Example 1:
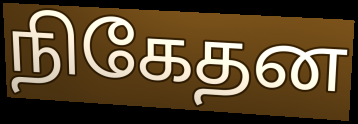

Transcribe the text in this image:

நிகேதன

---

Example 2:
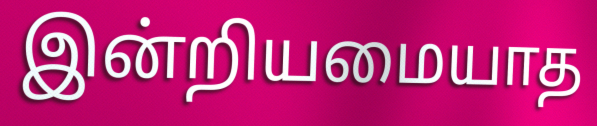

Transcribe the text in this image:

இன்றியமையாத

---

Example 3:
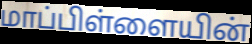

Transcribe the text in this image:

மாப்பிள்ளையின்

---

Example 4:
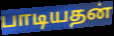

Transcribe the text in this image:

பாடியதன்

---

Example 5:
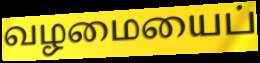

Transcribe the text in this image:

வழமையைப்